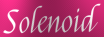
Solenoid